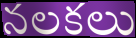
నలకలు